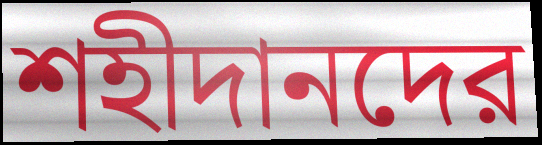
শহীদানদের